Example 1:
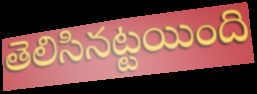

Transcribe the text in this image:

తెలిసినట్టయింది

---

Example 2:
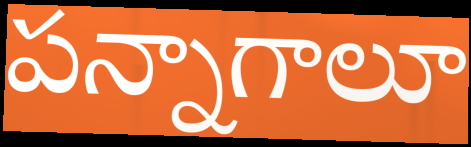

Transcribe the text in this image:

పన్నాగాలూ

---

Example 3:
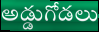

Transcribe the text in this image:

అడ్డుగోడలు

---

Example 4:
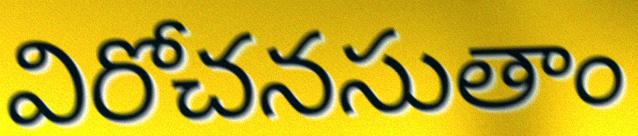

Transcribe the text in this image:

విరోచనసుతాం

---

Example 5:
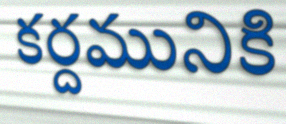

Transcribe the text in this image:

కర్దమునికి